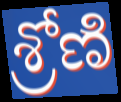
శ్రోణి